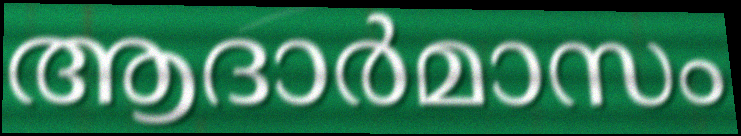
ആദാർമാസം